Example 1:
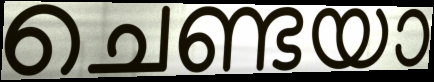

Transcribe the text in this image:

ചെണ്ടയാ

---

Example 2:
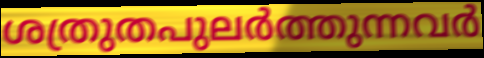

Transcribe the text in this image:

ശത്രുതപുലർത്തുന്നവർ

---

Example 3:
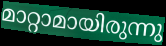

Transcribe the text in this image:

മാറ്റാമായിരുന്നു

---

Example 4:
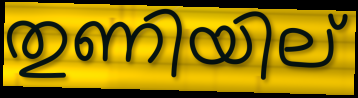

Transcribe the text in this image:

തുണിയില്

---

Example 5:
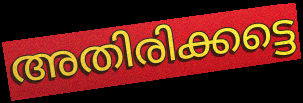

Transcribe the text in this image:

അതിരിക്കട്ടെ